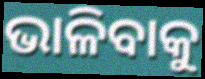
ଭାଳିବାକୁ